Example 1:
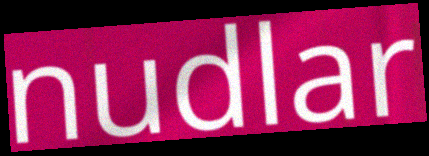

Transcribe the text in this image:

nudlar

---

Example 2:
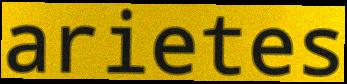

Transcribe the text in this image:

arietes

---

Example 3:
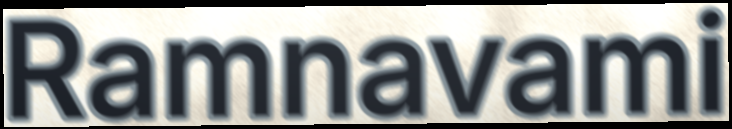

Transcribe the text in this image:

Ramnavami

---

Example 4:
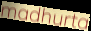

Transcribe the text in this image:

madhurta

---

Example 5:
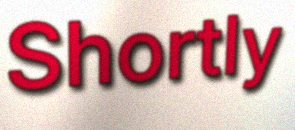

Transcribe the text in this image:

Shortly